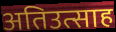
अतिउत्साह